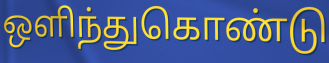
ஒளிந்துகொண்டு